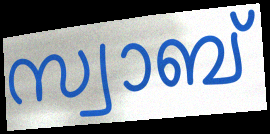
സ്വാബ്